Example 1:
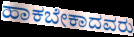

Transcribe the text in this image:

ಹಾಕಬೇಕಾದವರು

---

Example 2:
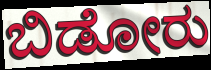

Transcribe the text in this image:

ಬಿಡೋರು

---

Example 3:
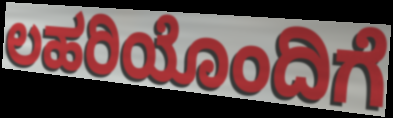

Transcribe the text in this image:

ಲಹರಿಯೊಂದಿಗೆ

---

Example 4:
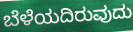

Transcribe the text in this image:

ಬೆಳೆಯದಿರುವುದು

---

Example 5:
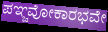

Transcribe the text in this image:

ಪಞ್ಚವೋಕಾರಭವೇ